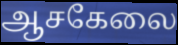
ஆசகேலை